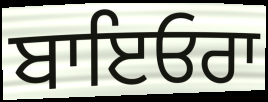
ਬਾਇਓਰਾ